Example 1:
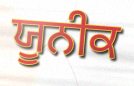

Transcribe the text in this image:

ਯੂਨੀਕ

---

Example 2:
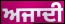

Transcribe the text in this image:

ਅਜਾਦੀ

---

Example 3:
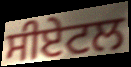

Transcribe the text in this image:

ਸੀਏਟਲ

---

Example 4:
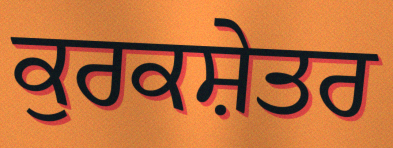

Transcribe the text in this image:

ਕੁਰਕਸ਼ੇਤਰ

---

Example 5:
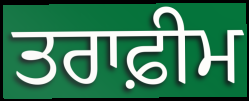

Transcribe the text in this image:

ਤਰਾਫ਼ੀਮ